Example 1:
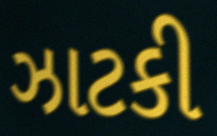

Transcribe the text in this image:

ઝાટકી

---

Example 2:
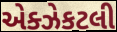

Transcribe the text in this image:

એક્ઝેકટલી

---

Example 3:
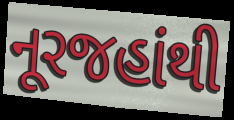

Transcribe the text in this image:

નૂરજહાંથી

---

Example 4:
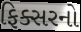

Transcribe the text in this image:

ફિક્સરનો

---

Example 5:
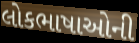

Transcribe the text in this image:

લોકભાષાઓની